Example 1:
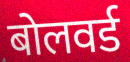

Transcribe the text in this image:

बोलवर्ड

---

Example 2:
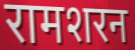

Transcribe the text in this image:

रामशरन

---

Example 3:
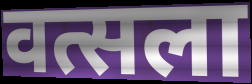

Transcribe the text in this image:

वत्सला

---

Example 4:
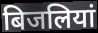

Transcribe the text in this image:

बिजलियां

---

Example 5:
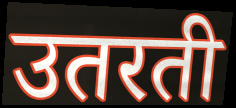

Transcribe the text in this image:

उतरती